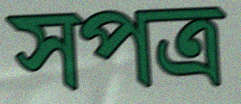
সপত্র